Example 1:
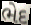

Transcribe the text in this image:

ભેદ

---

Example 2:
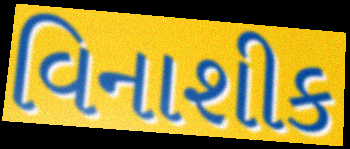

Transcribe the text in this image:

વિનાશીક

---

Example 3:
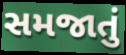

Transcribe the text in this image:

સમજાતું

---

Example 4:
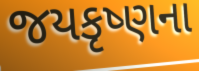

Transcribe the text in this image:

જયકૃષ્ણના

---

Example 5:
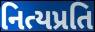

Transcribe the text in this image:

નિત્યપ્રતિ